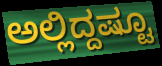
ಅಲ್ಲಿದ್ದಷ್ಟೂ